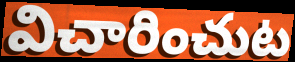
విచారించుట